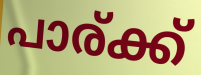
പാര്ക്ക്